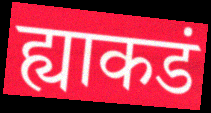
ह्याकडं